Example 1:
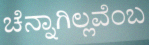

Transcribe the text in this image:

ಚೆನ್ನಾಗಿಲ್ಲವೆಂಬ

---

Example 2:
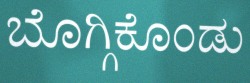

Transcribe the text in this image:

ಬೊಗ್ಗಿಕೊಂಡು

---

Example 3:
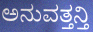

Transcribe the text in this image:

ಅನುವತ್ತನ್ತಿ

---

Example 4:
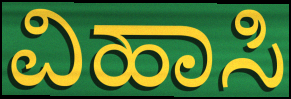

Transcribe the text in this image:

ವಿಹಾಸಿ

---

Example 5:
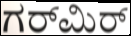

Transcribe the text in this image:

ಗರ್‌ಮಿರ್